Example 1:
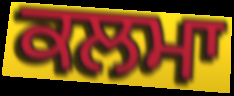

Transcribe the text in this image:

ਕਲਮਾ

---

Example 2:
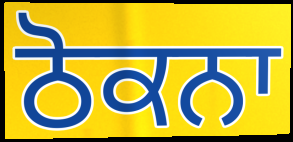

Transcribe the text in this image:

ਠੋਕਨਾ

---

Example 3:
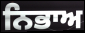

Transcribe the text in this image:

ਨਿਭਾਅ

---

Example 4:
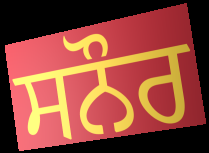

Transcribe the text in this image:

ਸਨੌਰ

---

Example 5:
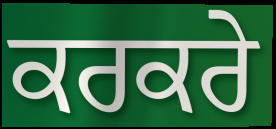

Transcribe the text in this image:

ਕਰਕਰੇ